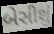
બેસીશું